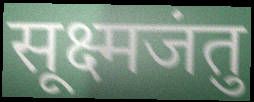
सूक्ष्मजंतु